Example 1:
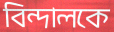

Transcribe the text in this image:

বিন্দালকে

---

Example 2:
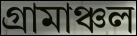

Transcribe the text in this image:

গ্রামাঞ্চল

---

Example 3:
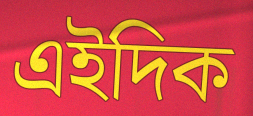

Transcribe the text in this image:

এইদিক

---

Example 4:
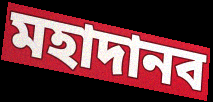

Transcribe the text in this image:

মহাদানব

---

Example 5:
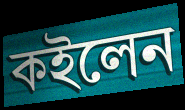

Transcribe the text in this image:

কইলেন